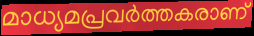
മാധ്യമപ്രവർത്തകരാണ്